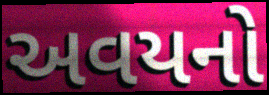
અવયનો